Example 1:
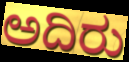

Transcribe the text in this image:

ಅದಿರು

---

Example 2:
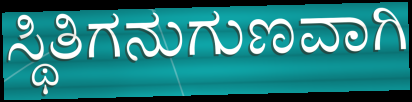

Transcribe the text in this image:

ಸ್ಥಿತಿಗನುಗುಣವಾಗಿ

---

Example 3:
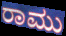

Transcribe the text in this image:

ರಾಮು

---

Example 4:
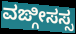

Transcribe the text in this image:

ವಙ್ಗೀಸಸ್ಸ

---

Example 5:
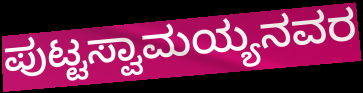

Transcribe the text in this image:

ಪುಟ್ಟಸ್ವಾಮಯ್ಯನವರ